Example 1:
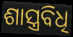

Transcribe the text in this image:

ଶାସ୍ତ୍ରବିଧି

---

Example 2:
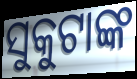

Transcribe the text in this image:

ସୁକୁଟାଙ୍କ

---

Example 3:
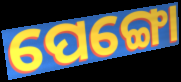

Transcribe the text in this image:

ପେଙ୍ଗୋ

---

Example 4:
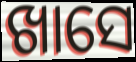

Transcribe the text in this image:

ଖାସେ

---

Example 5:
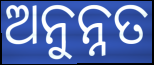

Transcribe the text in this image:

ଅନୁନ୍ନତ